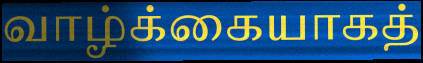
வாழ்க்கையாகத்